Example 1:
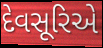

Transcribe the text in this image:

દેવસૂરિએ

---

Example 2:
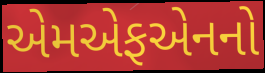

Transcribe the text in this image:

એમએફએનનો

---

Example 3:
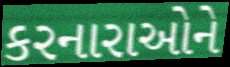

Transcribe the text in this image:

કરનારાઓને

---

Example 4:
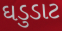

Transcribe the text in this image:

ઘડુડાટ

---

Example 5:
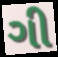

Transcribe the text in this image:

ગી